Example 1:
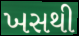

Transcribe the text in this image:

ખસથી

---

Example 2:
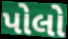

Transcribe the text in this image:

પોલો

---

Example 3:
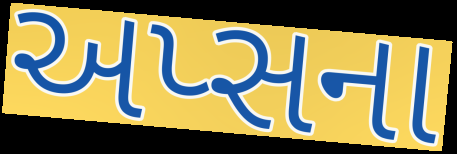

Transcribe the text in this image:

અપ્સના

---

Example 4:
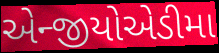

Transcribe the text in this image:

એન્જીયોએડીમા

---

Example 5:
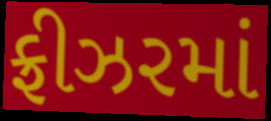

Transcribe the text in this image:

ફ્રીઝરમાં